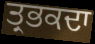
ਤ੍ਰਭਕਦਾ